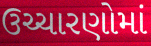
ઉચ્ચારણોમાં